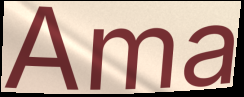
Ama